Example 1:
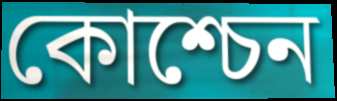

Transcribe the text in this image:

কোশ্চেন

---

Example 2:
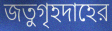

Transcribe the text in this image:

জতুগৃহদাহের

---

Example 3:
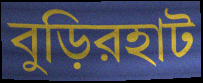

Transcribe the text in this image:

বুড়িরহাট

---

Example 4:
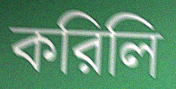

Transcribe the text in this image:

করিলি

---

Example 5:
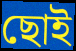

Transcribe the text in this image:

ছোই